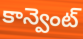
కాన్వెంట్